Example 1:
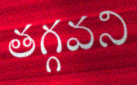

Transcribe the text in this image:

తగ్గవని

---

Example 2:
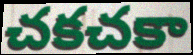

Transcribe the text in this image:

చకచకా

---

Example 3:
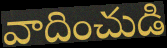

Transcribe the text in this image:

వాదించుడి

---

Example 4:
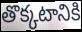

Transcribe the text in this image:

తొక్కటానికి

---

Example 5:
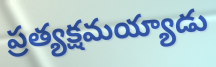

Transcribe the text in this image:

ప్రత్యక్షమయ్యాడు